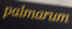
palmarum